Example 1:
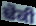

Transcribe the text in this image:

ਢੋਕੀ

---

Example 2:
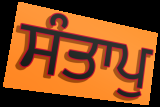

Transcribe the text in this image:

ਸੰਤਾਪੁ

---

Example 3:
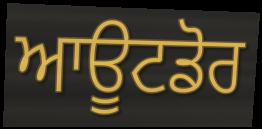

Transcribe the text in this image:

ਆਊਟਡੋਰ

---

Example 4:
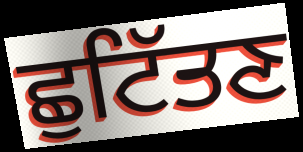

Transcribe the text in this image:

ਛੁਟਿੱਤਣ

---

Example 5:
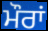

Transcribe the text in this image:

ਮੌਰਾਂ